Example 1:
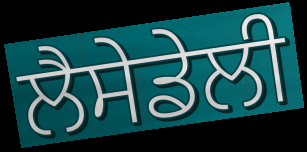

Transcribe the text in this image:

ਲੈਸੇਡੇਲੀ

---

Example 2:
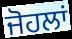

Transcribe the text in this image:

ਜੋਹਲਾਂ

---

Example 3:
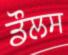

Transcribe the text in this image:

ਡੌਲਸ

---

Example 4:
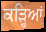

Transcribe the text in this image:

ਕੜ੍ਹਿਆਂ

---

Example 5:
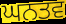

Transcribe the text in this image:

ਘਨਤਵ